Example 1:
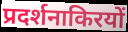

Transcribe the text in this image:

प्रदर्शनाकिरयों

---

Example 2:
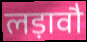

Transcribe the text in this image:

लड़ावौ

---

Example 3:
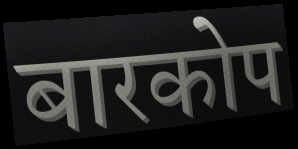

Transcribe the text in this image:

बारकोप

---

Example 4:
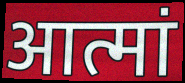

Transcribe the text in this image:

आत्मां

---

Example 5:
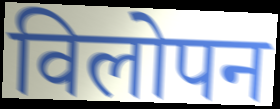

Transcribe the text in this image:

विलोपन